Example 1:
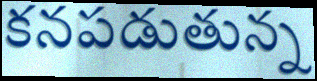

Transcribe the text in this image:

కనపడుతున్న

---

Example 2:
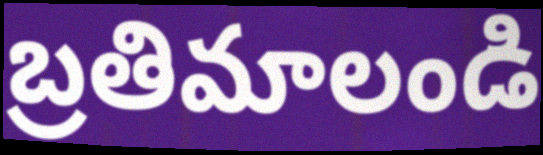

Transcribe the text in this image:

బ్రతిమాలండి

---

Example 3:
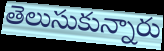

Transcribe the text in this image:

తెలుసుకున్నారు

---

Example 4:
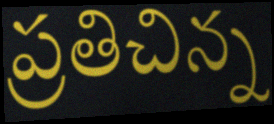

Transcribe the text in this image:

ప్రతిచిన్న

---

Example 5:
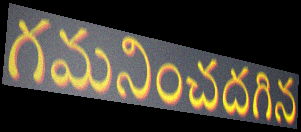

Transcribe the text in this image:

గమనించదగిన